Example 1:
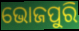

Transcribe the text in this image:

ଭୋଜପୁରି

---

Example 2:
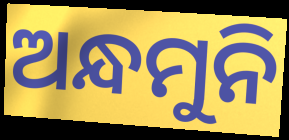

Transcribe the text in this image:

ଅନ୍ଧମୁନି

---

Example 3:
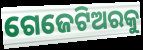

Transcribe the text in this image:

ଗେଜେଟିଅରକୁ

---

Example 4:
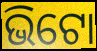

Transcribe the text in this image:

ଭିଟୋ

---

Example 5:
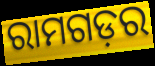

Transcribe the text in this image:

ରାମଗଡ଼ର